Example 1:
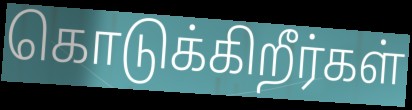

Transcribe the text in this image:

கொடுக்கிறீர்கள்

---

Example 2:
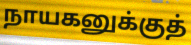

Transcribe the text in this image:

நாயகனுக்குத்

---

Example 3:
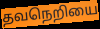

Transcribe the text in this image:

தவநெறியை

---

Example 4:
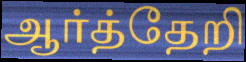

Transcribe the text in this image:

ஆர்த்தேறி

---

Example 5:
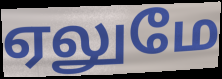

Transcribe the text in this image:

ஏலுமே